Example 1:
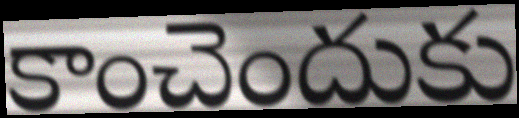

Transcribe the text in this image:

కాంచెందుకు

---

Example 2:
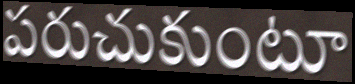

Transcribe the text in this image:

పరుచుకుంటూ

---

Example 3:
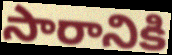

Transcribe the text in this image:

సారానికి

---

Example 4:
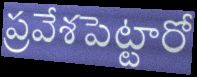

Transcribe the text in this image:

ప్రవేశపెట్టారో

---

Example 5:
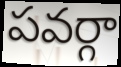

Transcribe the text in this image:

పవర్గా